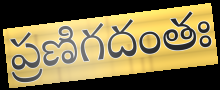
ప్రణిగదంతః